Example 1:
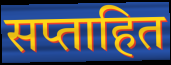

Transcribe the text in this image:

सप्ताहित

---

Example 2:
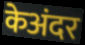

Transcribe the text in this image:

केअंदर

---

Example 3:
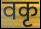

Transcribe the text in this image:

वकृ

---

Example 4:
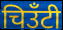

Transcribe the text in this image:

चिउँटी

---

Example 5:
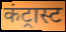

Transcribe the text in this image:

कंट्रास्ट